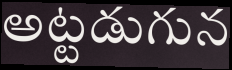
అట్టడుగున